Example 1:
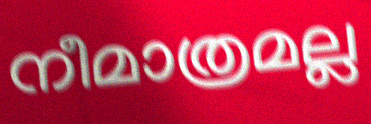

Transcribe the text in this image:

നീമാത്രമല്ല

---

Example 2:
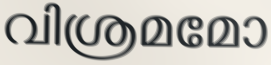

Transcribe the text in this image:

വിശ്രമമോ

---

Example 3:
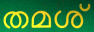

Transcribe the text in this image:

തമശ്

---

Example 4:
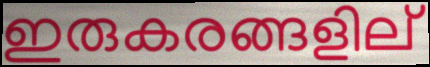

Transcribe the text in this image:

ഇരുകരങ്ങളില്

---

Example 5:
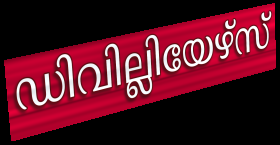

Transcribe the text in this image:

ഡിവില്ലിയേഴ്സ്